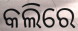
କଲିରେ